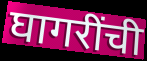
घागरींची